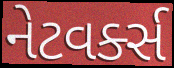
નેટવર્ક્સ